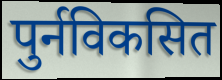
पुर्नविकसित